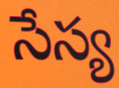
సేస్య